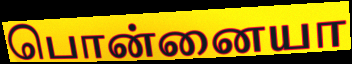
பொன்னையா